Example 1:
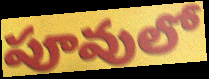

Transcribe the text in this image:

పూవులో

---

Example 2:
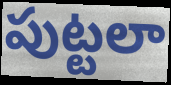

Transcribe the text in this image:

పుట్టలా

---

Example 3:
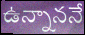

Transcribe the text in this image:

ఉన్నాననే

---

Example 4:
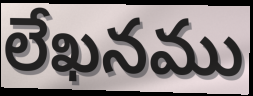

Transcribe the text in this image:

లేఖనము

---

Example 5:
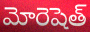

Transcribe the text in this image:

మోరెషెత్